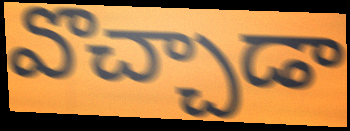
వొచ్చాడా